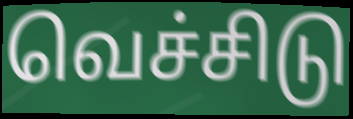
வெச்சிடு